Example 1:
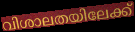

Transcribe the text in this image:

വിശാലതയിലേക്ക്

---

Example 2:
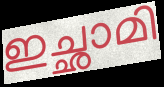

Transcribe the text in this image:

ഇച്ഛാമി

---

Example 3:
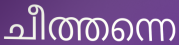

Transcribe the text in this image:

ചീത്തന്നെ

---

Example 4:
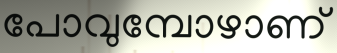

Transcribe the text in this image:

പോവുമ്പോഴാണ്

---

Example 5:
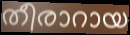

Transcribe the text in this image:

തീരാറായ